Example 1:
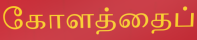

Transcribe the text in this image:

கோளத்தைப்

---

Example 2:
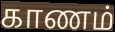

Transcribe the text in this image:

காணம்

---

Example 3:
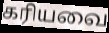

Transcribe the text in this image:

கரியவை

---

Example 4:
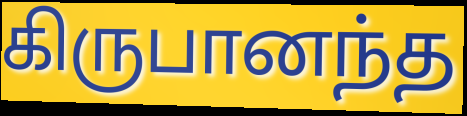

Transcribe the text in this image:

கிருபானந்த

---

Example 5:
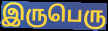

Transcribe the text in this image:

இருபெரு